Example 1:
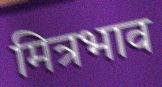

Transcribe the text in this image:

मित्रभाव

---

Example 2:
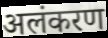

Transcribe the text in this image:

अलंकरण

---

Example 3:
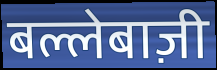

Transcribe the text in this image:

बल्लेबाज़ी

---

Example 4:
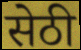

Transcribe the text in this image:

सेठी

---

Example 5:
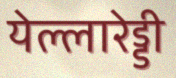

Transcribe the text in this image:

येल्लारेड्डी